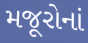
મજૂરોનાં